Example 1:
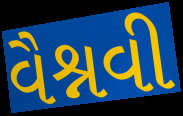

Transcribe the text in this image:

વૈશ્નવી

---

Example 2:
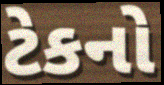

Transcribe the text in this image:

ટેકનો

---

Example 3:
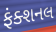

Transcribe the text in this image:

ફંક્શનલ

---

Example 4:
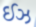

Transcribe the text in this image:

ઈઝ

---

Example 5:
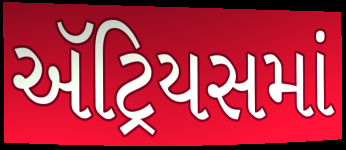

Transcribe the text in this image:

ઍટ્રિયસમાં